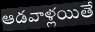
ఆడవాళ్లయితే